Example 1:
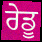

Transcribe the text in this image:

ਰੇਡੂ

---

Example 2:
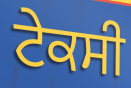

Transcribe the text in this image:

ਟੇਕਸੀ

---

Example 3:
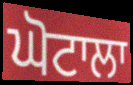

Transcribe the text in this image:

ਘੋਟਾਲਾ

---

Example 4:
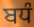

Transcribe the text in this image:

ਬਧੰ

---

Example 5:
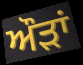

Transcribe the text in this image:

ਔੜਾਂ